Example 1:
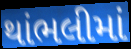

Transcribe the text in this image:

થાંભલીમાં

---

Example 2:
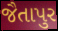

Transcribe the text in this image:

જૈતાપુર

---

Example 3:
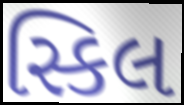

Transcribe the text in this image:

સ્કિલ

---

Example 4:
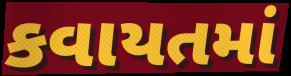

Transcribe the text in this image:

કવાયતમાં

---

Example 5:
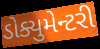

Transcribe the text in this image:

ડોક્યુમેન્ટરી